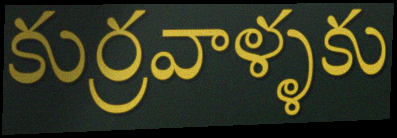
కుర్రవాళ్ళకు